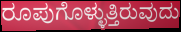
ರೂಪುಗೊಳ್ಳುತ್ತಿರುವುದು